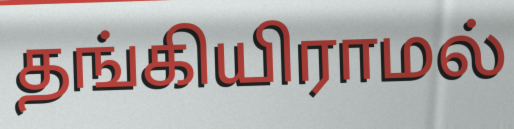
தங்கியிராமல்